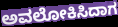
ಅವಲೋಕಿಸಿದಾಗ